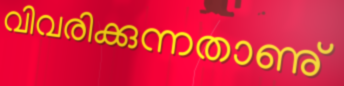
വിവരിക്കുന്നതാണു്